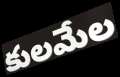
కులమేల